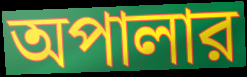
অপালার